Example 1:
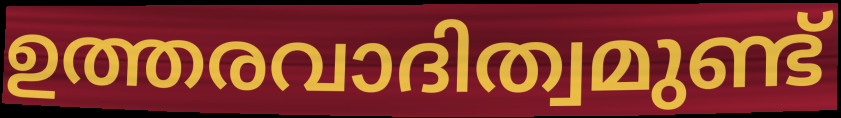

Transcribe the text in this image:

ഉത്തരവാദിത്വമുണ്ട്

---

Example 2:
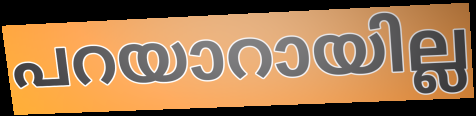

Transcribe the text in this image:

പറയാറായില്ല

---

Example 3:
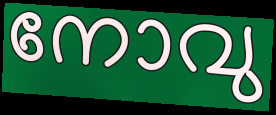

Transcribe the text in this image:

നോവു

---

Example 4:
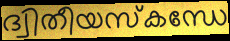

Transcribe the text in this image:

ദ്വിതീയസ്കന്ധേ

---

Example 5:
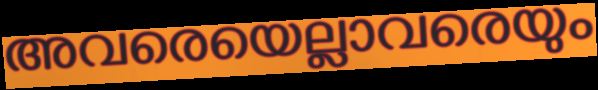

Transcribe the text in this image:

അവരെയെല്ലാവരെയും